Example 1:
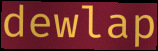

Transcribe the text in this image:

dewlap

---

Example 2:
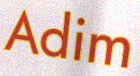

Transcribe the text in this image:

Adim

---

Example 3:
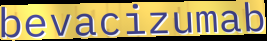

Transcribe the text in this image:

bevacizumab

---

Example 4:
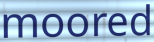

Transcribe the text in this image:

moored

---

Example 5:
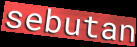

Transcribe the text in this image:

sebutan